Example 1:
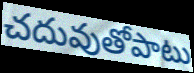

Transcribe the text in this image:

చదువుతోపాటు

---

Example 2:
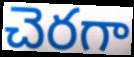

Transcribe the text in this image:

చెరగా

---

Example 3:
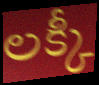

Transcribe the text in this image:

లక్కీ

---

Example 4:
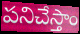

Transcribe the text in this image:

పనిచేస్తాం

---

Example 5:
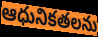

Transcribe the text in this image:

ఆధునికతలను